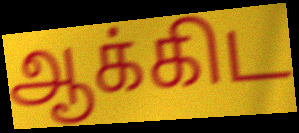
ஆக்கிட